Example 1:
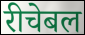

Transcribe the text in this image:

रीचेबल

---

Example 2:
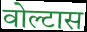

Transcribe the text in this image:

वोल्टास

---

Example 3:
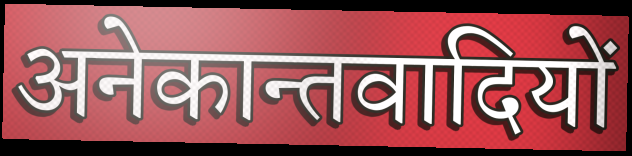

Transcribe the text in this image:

अनेकान्तवादियों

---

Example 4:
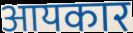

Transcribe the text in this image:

आयकार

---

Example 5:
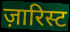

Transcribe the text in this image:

ज़ारिस्ट